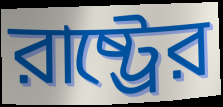
রাষ্ট্রের